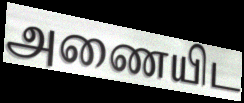
அணையிட